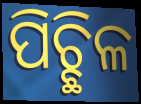
ପିଚ୍ଛିଳ